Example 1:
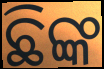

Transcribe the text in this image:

ଛିଙ୍କ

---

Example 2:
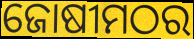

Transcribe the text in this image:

ଜୋଷୀମଠର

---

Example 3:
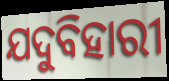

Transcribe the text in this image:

ଯଦୁବିହାରୀ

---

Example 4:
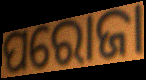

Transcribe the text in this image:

ପରୋଜା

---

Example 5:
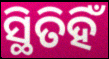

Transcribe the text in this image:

ସ୍ଥିତିହିଁ